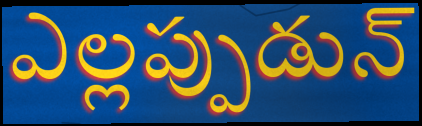
ఎల్లప్పుడున్